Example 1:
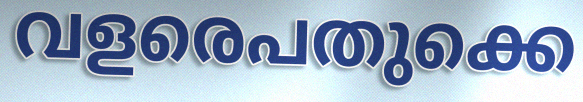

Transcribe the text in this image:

വളരെപതുക്കെ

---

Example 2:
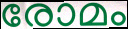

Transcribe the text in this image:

രോമം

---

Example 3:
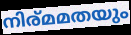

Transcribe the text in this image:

നിര്മമതയും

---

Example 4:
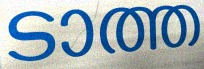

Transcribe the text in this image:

ടാത്ത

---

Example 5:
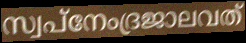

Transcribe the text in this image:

സ്വപ്നേംദ്രജാലവത്